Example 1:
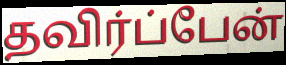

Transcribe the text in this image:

தவிர்ப்பேன்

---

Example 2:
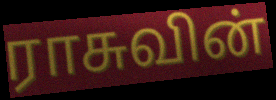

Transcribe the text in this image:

ராசுவின்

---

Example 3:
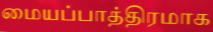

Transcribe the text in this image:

மையப்பாத்திரமாக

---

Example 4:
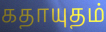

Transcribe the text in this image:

கதாயுதம்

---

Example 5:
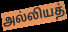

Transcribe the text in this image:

அல்லியத்